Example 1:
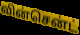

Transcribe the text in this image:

வின்சென்ட்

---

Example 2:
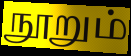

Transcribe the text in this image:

நூறும்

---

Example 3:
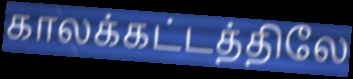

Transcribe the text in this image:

காலக்கட்டத்திலே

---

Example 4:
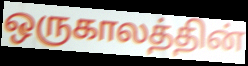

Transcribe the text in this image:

ஒருகாலத்தின்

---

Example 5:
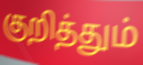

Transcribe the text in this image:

குறித்தும்